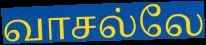
வாசல்லே